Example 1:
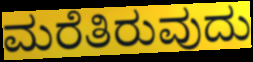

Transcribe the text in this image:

ಮರೆತಿರುವುದು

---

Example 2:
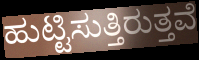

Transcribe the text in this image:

ಹುಟ್ಟಿಸುತ್ತಿರುತ್ತವೆ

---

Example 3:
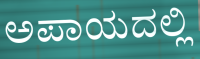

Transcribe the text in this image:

ಅಪಾಯದಲ್ಲಿ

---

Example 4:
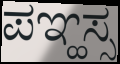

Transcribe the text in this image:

ಪಞ್ಹಸ್ಸ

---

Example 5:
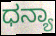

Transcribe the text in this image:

ಧನ್ಯಾ